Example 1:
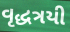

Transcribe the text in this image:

વૃદ્ધત્રયી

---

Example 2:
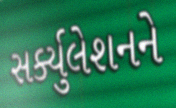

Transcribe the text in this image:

સર્ક્યુલેશનને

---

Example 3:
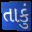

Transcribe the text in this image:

તાકું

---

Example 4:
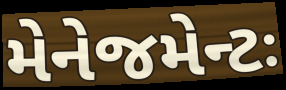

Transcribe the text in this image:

મેનેજમેન્ટઃ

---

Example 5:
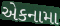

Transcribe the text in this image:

એકનામા